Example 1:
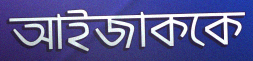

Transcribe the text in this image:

আইজাককে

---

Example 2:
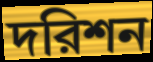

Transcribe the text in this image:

দরিশন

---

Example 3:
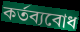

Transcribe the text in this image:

কর্তব্যবোধ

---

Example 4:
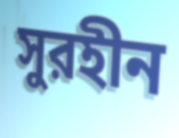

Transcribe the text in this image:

সুরহীন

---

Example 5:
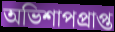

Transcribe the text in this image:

অভিশাপপ্রাপ্ত